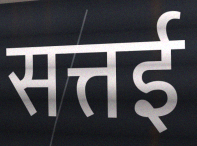
सत्तई